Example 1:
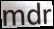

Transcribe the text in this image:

mdr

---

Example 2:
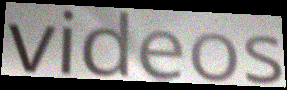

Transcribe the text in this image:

videos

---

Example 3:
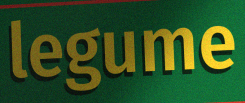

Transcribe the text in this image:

legume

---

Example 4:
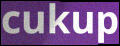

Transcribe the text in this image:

cukup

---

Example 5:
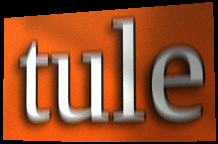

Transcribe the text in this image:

tule